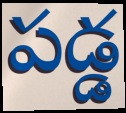
పడ్డ